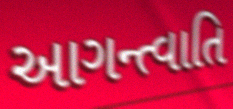
આગન્ત્વાતિ